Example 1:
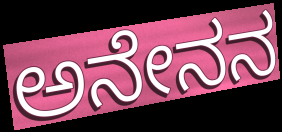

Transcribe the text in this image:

ಅನೇನನ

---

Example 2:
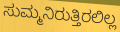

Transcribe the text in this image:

ಸುಮ್ಮನಿರುತ್ತಿರಲಿಲ್ಲ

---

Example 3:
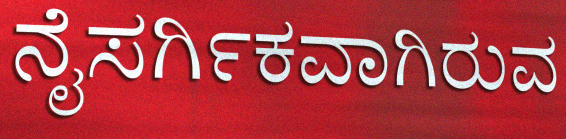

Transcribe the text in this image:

ನೈಸರ್ಗಿಕವಾಗಿರುವ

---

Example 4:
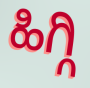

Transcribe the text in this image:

ಹಿಗ್ಗಿ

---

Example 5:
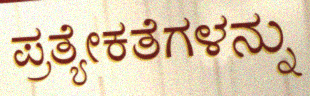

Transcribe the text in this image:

ಪ್ರತ್ಯೇಕತೆಗಳನ್ನು